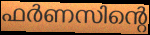
ഫർണസിന്റെ